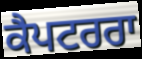
ਕੈਪਟਰਰਾ